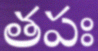
తపః